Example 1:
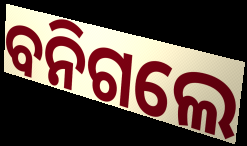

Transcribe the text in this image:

ବନିଗଲେ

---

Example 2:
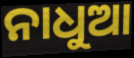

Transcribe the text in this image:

ନାଧୁଆ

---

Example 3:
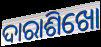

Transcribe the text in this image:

ଦାରାଶିଖୋ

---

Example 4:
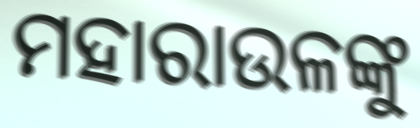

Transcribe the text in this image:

ମହାରାଉଳଙ୍କୁ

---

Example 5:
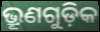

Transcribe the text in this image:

ଭ୍ରୂଣଗୁଡ଼ିକ